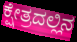
ಕ್ಷೇತ್ರದಲ್ಲಿನ